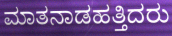
ಮಾತನಾಡಹತ್ತಿದರು